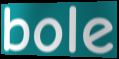
bole